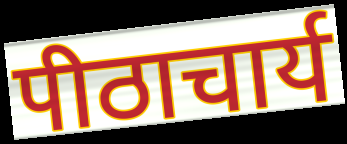
पीठाचार्य